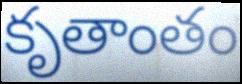
కృతాంతం